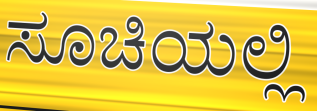
ಸೂಚಿಯಲ್ಲಿ